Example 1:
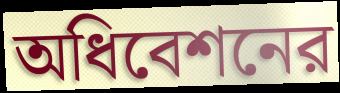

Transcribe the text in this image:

অধিবেশনের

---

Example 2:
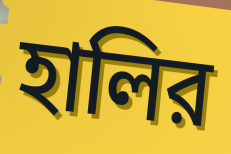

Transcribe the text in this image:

হালির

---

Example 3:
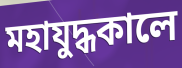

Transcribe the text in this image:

মহাযুদ্ধকালে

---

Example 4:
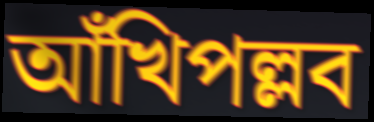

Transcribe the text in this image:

আঁখিপল্লব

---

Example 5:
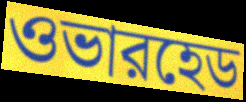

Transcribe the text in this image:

ওভারহেড